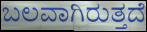
ಬಲವಾಗಿರುತ್ತದೆ